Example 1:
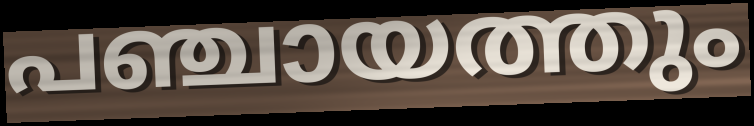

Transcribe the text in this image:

പഞ്ചായത്തും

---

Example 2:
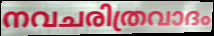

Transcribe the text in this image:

നവചരിത്രവാദം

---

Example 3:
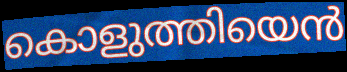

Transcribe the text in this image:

കൊളുത്തിയെൻ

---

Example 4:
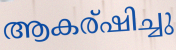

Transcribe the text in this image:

ആകര്ഷിച്ചു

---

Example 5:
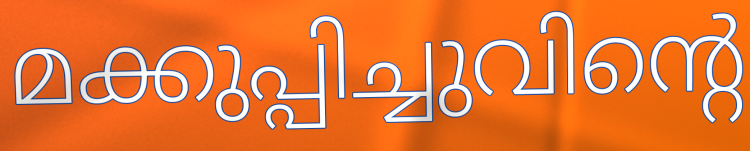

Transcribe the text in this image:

മക്കുപ്പിച്ചുവിന്റെ